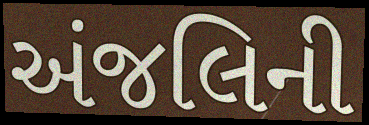
અંજલિની